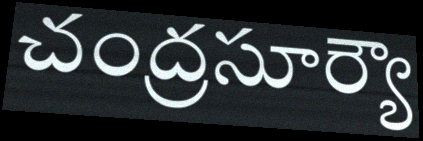
చంద్రసూర్యౌ